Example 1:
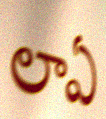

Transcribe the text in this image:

లాఏ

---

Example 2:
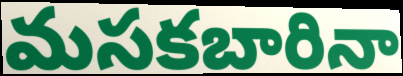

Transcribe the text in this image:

మసకబారినా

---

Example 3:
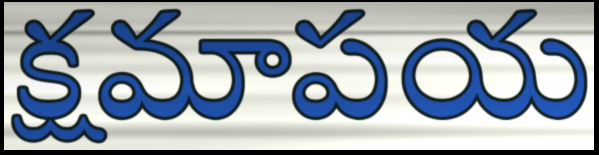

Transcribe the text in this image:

క్షమాపయ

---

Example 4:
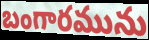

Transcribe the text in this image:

బంగారమును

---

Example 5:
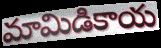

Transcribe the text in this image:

మామిడికాయ